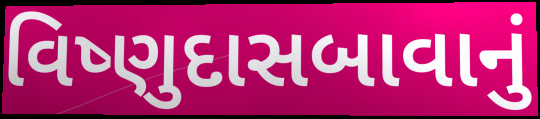
વિષ્ણુદાસબાવાનું